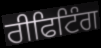
ਰੀਫਿਟਿੰਗ